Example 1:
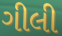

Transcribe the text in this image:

ગીલી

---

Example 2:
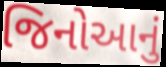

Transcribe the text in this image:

જિનોઆનું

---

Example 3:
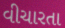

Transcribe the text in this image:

વીચારતા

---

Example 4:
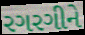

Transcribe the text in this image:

રગરગીને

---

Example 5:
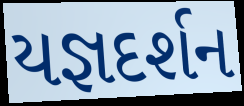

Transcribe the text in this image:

યજ્ઞદર્શન